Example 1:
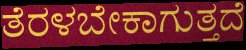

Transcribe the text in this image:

ತೆರಳಬೇಕಾಗುತ್ತದೆ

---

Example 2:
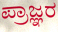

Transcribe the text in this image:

ಪ್ರಾಜ್ಞರ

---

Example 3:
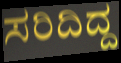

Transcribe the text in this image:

ಸರಿದಿದ್ದ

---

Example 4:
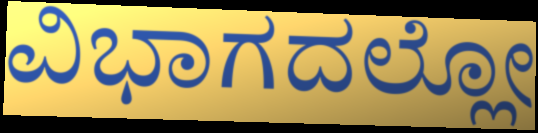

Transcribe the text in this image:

ವಿಭಾಗದಲ್ಲೋ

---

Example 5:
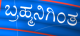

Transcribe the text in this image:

ಬ್ರಹ್ಮನಿಗಿಂತ